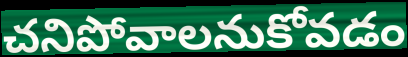
చనిపోవాలనుకోవడం